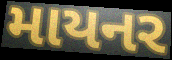
માયનર